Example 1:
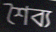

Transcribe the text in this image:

শৈব্য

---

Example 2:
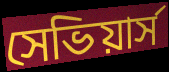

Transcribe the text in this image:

সেভিয়ার্স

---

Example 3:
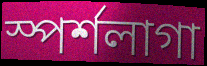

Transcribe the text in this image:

স্পর্শলাগা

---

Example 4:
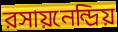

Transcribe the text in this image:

রসায়নেন্দ্রিয়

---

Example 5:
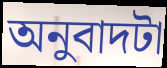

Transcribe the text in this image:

অনুবাদটা